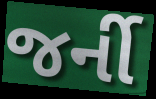
જર્ની